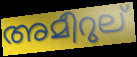
അമീറുല്